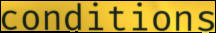
conditions